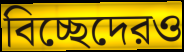
বিচ্ছেদেরও